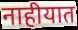
नाहीयात